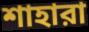
শাহারা